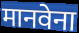
मानवेना